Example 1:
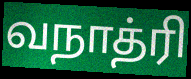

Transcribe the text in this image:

வநாத்ரி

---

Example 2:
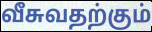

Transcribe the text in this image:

வீசுவதற்கும்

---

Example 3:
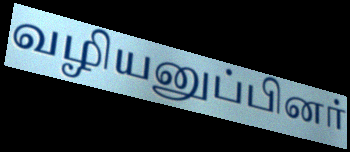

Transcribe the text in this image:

வழியனுப்பினர்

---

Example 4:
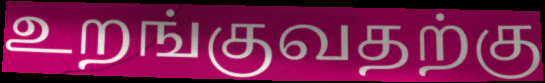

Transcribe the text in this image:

உறங்குவதற்கு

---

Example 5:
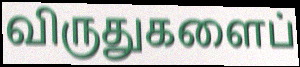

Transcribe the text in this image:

விருதுகளைப்